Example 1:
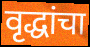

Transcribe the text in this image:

वृद्धांचा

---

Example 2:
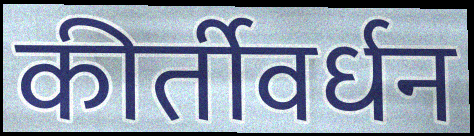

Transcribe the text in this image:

कीर्तीवर्धन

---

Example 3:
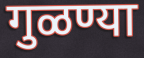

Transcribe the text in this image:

गुळण्या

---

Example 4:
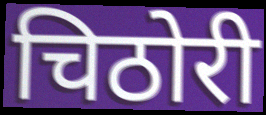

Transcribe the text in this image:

चिठोरी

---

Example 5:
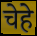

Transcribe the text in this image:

चेहे